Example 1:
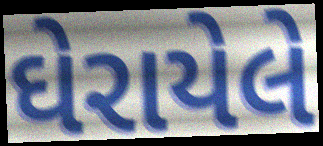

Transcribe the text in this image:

ઘેરાયેલે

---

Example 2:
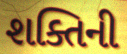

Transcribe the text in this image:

શક્તિની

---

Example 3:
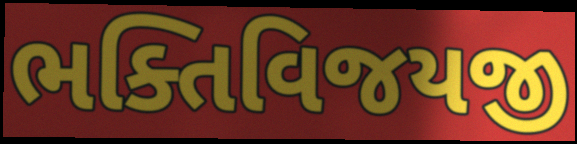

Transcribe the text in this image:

ભક્તિવિજયજી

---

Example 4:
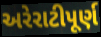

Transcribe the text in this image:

અરેરાટીપૂર્ણ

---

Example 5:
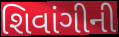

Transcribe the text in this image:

શિવાંગીની